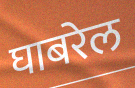
घाबरेल